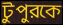
টুপুরকে